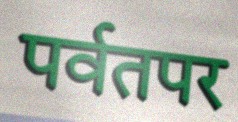
पर्वतपर